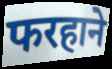
फरहाने